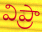
విప్రా